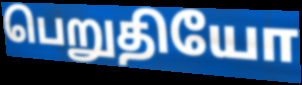
பெறுதியோ